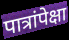
पात्रांपेक्षा